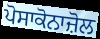
ਪੋਸਾਕੋਨਾਜ਼ੋਲ